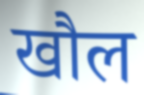
खौल